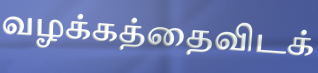
வழக்கத்தைவிடக்